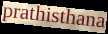
prathisthana